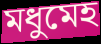
মধুমেহ